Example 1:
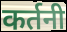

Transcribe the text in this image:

कर्तनी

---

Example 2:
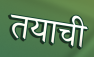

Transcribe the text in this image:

तयाची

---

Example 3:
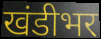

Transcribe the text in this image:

खंडीभर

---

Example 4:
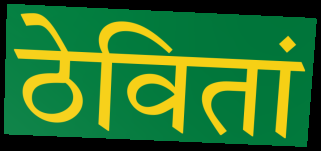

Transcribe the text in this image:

ठेवितां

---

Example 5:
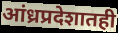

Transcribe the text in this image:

आंध्रप्रदेशातही